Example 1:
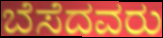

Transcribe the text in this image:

ಬೆಸೆದವರು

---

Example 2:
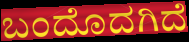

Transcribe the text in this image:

ಬಂದೊದಗಿದೆ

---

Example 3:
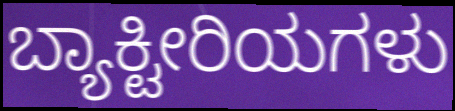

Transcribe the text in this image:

ಬ್ಯಾಕ್ಟೀರಿಯಗಳು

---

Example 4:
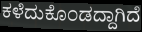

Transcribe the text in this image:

ಕಳೆದುಕೊಂಡದ್ದಾಗಿದೆ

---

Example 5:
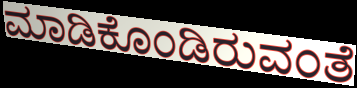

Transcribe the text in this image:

ಮಾಡಿಕೊಂಡಿರುವಂತೆ